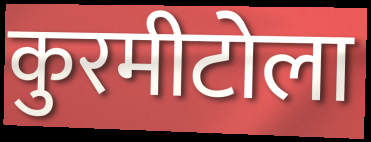
कुरमीटोला